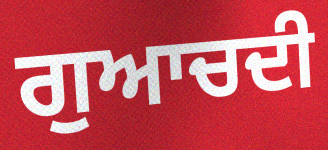
ਗੁਆਚਦੀ